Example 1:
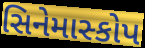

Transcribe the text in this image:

સિનેમાસ્કોપ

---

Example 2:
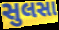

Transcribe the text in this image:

સુલસા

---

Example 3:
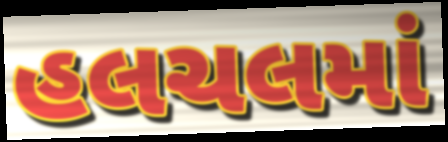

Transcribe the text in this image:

હલચલમાં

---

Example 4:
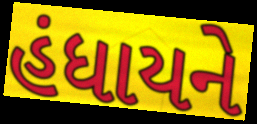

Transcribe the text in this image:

હંધાયને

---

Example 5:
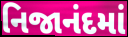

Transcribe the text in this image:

નિજાનંદમાં